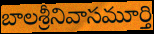
బాలశ్రీనివాసమూర్తి